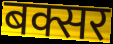
बक्सर